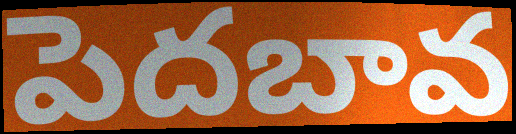
పెదబావ